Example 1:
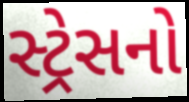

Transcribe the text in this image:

સ્ટ્રેસનો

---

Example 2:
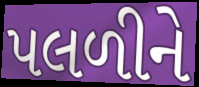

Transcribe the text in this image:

પલળીને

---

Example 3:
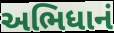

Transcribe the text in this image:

અભિધાનં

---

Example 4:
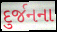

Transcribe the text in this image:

દુર્જનના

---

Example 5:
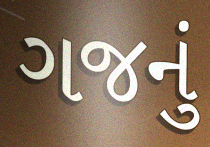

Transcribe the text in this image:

ગજનું